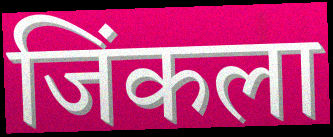
जिंकला